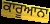
ਕਾਰੂਆਨਾ